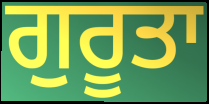
ਗੁਰੂਤਾ